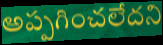
అప్పగించలేదని